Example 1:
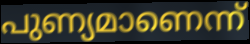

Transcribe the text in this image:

പുണ്യമാണെന്ന്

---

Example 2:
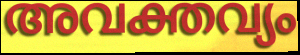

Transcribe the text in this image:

അവക്തവ്യം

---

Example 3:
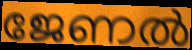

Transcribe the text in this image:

ജേണൽ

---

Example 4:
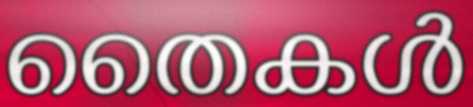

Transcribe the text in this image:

തൈകൾ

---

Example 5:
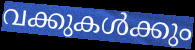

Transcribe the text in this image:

വക്കുകൾക്കും